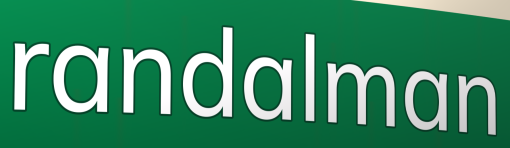
randalman